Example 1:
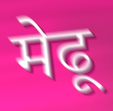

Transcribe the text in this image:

मेढू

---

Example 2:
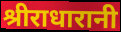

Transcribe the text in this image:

श्रीराधारानी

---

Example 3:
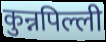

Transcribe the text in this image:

कुन्नपिल्ली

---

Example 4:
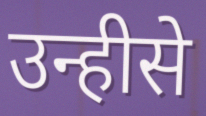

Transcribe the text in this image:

उन्हीसे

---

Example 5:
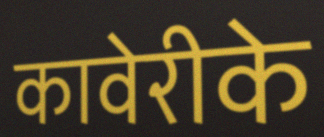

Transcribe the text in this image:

कावेरीके